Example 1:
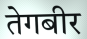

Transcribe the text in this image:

तेगबीर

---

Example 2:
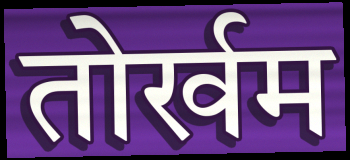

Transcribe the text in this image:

तोर्खम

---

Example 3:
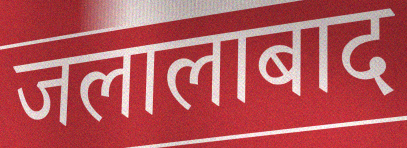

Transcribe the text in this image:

जलालाबाद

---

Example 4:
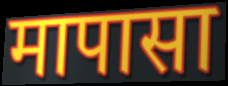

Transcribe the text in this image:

मापासा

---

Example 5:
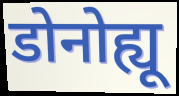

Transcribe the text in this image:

डोनोह्यू